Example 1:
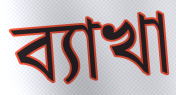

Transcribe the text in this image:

ব্যাখা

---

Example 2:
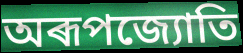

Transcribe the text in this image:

অৰূপজ্যোতি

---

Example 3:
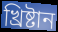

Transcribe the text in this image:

খ্ৰিষ্টান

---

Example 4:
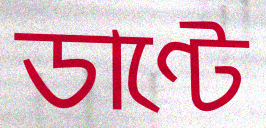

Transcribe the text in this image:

ডাণ্টে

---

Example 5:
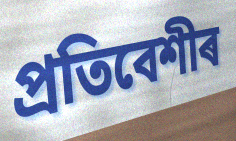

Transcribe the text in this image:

প্ৰতিবেশীৰ